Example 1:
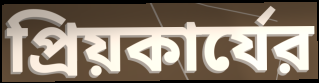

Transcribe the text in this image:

প্রিয়কার্যের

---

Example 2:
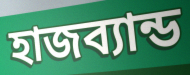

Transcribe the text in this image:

হাজব্যান্ড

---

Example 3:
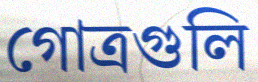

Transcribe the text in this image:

গোত্রগুলি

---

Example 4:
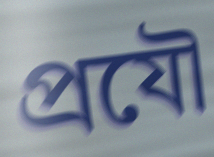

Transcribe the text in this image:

প্রযৌ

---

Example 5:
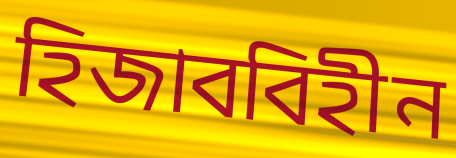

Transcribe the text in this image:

হিজাববিহীন